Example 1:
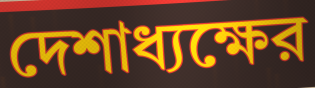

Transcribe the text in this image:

দেশাধ্যক্ষের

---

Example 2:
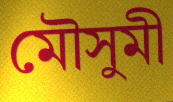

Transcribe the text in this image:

মৌসুমী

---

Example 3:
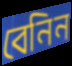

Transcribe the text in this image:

বেনিন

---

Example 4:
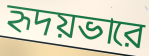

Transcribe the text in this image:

হৃদয়ভারে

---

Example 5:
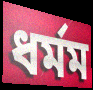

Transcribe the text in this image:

ধর্মম